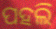
ପହଲି